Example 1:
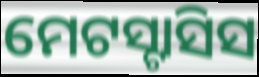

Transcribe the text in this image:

ମେଟସ୍ଟାସିସ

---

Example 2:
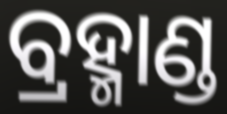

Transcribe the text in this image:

ବ୍ରହ୍ମାଣ୍ଡ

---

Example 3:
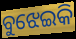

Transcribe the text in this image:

ବୁଝେଇକି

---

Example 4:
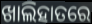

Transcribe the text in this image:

ଖାଲିହାତରେ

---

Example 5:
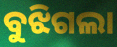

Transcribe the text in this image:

ବୁଝିଗଲା